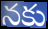
నకు